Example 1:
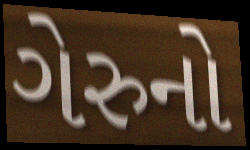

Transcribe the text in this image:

ગેરુનો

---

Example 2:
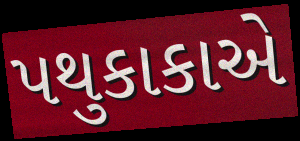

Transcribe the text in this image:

પથુકાકાએ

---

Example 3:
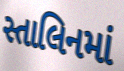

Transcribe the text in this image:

સ્તાલિનમાં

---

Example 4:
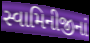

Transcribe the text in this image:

સ્વામિનીજીનાં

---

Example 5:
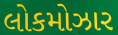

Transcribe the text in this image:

લોકમોઝાર